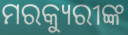
ମରକ୍ୟୁରୀଙ୍କ